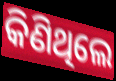
କିଣିଥିଲେ